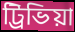
ট্রিভিয়া